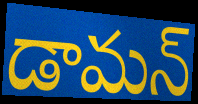
డామన్